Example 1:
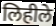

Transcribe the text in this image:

लिहीले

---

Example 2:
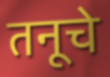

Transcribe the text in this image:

तनूचे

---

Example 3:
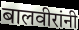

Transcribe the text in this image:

बालवीरांनी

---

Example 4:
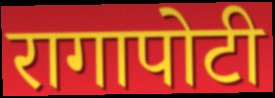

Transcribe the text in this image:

रागापोटी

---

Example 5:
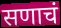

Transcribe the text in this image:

सणाचं